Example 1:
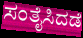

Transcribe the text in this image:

ಸಂತೈಸಿದಡೆ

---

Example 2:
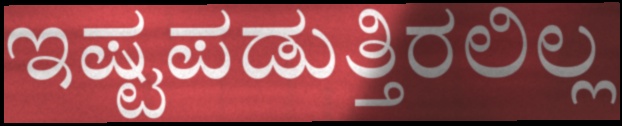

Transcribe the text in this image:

ಇಷ್ಟಪಡುತ್ತಿರಲಿಲ್ಲ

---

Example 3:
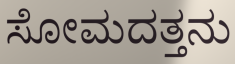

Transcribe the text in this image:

ಸೋಮದತ್ತನು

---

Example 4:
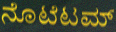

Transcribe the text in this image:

ನೊಟೆಟಮ್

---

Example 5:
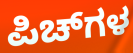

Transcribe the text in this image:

ಪಿಚ್‌ಗಳ